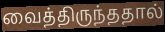
வைத்திருந்ததால்